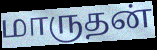
மாருதன்